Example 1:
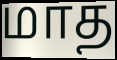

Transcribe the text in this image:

மாத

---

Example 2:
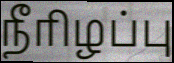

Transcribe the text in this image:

நீரிழப்பு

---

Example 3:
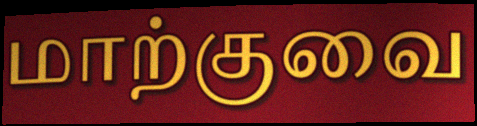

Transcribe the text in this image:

மாற்குவை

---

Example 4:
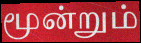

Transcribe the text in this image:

மூன்றும்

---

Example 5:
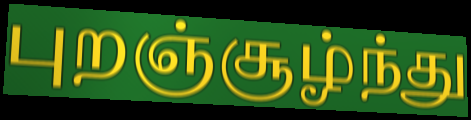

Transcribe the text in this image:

புறஞ்சூழ்ந்து